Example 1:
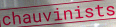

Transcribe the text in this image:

chauvinists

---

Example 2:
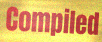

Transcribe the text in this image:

Compiled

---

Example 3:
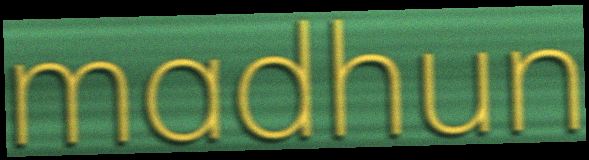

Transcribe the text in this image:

madhun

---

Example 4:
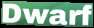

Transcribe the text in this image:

Dwarf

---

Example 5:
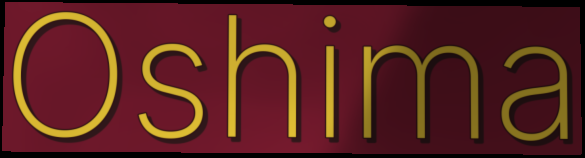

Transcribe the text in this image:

Oshima